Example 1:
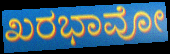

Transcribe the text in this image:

ಖರಭಾವೋ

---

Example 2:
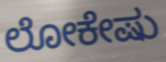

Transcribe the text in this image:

ಲೋಕೇಷು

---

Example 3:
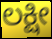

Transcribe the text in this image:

ಲಕ್ಷೀ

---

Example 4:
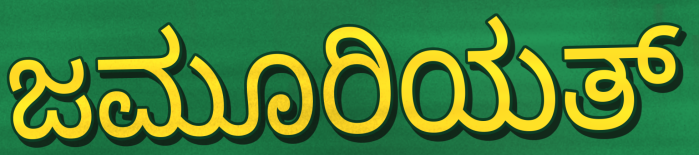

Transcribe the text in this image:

ಜಮೂರಿಯತ್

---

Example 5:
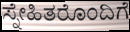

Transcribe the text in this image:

ಸ್ನೇಹಿತರೊಂದಿಗೆ